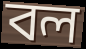
বল